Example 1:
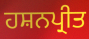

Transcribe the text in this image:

ਹਸ਼ਨਪ੍ਰੀਤ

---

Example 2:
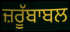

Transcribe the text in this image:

ਜ਼ਰੂੱਬਾਬਲ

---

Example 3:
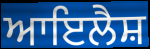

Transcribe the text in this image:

ਆਇਲੈਸ਼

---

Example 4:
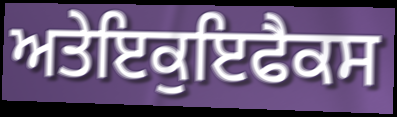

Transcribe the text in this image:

ਅਤੇਇਕੁਇਫੈਕਸ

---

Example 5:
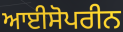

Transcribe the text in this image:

ਆਈਸੋਪਰੀਨ